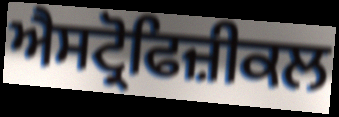
ਐਸਟ੍ਰੋਫਿਜ਼ੀਕਲ